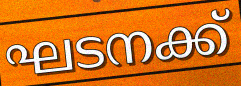
ഘടനക്ക്